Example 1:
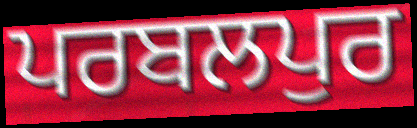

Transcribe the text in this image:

ਪਰਬਲਪੁਰ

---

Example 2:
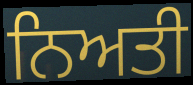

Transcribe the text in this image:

ਨਿਅਤੀ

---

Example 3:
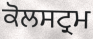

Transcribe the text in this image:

ਕੋਲਸਟ੍ਰਮ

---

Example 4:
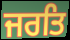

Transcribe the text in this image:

ਜਰਤਿ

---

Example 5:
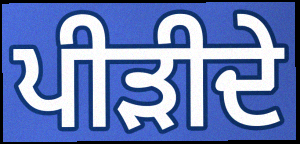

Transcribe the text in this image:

ਪੀੜੀਦੇ